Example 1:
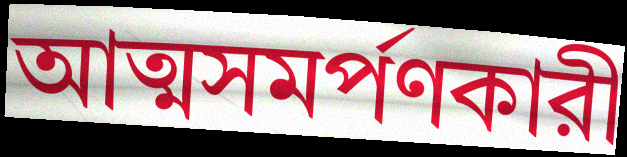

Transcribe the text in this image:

আত্মসমর্পণকারী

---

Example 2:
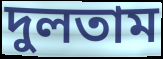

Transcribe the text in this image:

দুলতাম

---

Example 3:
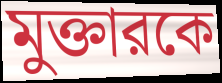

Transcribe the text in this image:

মুক্তারকে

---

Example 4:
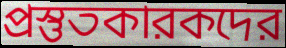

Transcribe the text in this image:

প্রস্তুতকারকদের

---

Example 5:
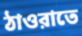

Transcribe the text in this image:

ঠাওরাতে